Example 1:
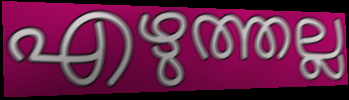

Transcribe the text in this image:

എഴുത്തല്ല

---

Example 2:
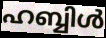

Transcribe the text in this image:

ഹബ്ബിൾ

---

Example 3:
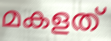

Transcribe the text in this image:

മകളത്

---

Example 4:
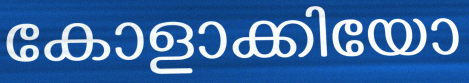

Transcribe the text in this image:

കോളാക്കിയോ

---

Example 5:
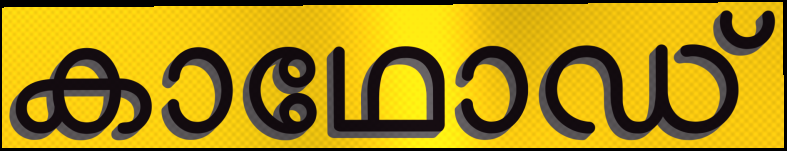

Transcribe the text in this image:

കാഥോഡ്